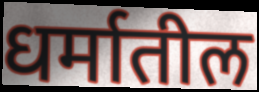
धर्मातील